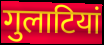
गुलाटियां